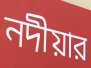
নদীয়ার